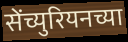
सेंच्युरियनच्या